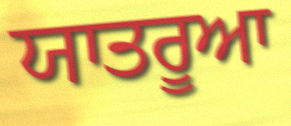
ਯਾਤਰੂਆ